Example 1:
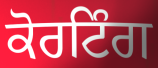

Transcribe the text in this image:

ਕੋਰਟਿੰਗ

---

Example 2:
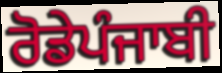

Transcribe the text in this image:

ਰੋਡੇਪੰਜਾਬੀ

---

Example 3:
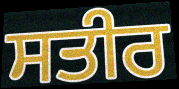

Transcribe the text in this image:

ਸਤੀਰ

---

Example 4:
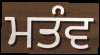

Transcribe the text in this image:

ਮਤੰਵ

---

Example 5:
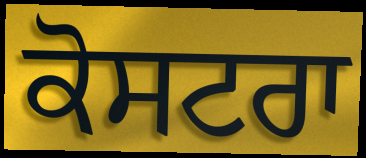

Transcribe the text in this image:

ਕੋਸਟਰਾ